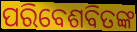
ପରିବେଶବିତଙ୍କ